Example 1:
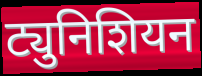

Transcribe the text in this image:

ट्युनिशियन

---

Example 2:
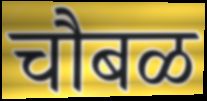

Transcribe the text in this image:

चौबळ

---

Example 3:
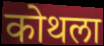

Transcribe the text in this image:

कोथला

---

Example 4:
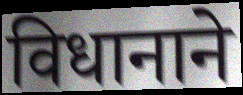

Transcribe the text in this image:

विधानाने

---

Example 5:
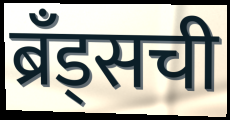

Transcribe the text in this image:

ब्रॅंड्सची